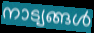
നാട്യങ്ങൾ